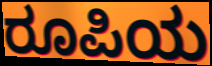
ರೂಪಿಯ